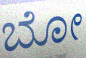
ಬೋ